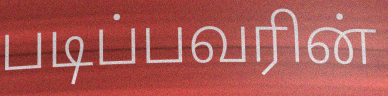
படிப்பவரின்